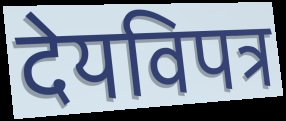
देयविपत्र